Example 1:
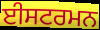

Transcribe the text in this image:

ਈਸਟਰਮਨ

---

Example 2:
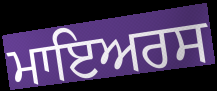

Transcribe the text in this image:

ਮਾਇਅਰਸ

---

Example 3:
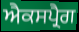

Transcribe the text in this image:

ਐਕਸਪ੍ਰੈਗ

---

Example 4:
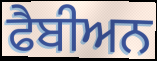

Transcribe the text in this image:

ਫੈਬੀਅਨ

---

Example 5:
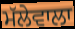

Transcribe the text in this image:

ਮੱਲੇਵਾਲਾ